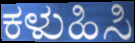
ಕಳುಹಿಸಿ